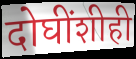
दोघींशीही